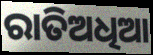
ରାତିଅଧିଆ